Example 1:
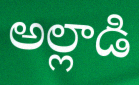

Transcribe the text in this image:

అల్లాడి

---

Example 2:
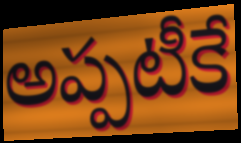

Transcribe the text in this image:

అప్పటీకే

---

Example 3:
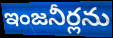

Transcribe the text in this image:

ఇంజనీర్లను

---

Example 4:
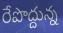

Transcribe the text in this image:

రేపొద్దున్న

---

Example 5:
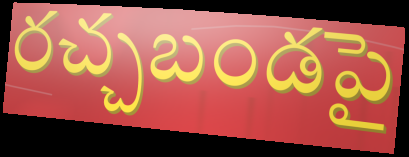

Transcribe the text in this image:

రచ్చబండపై